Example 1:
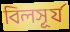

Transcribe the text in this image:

বিলসূর্য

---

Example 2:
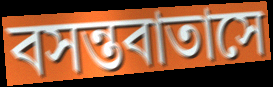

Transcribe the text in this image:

বসন্তবাতাসে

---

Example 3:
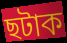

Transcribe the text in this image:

ছটাক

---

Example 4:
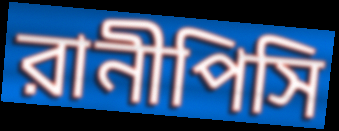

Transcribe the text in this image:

রানীপিসি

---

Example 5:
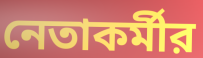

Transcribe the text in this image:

নেতাকর্মীর